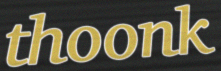
thoonk